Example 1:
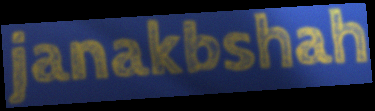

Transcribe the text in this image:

janakbshah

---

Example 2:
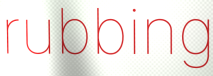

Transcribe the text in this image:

rubbing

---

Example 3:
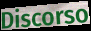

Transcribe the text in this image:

Discorso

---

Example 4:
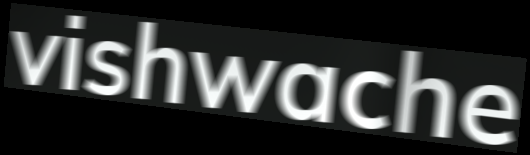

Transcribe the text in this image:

vishwache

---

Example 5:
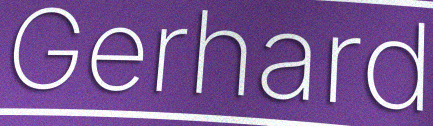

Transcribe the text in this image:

Gerhard